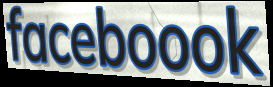
faceboook